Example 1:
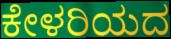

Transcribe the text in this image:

ಕೇಳರಿಯದ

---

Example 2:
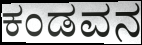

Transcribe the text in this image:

ಕಂಡವನ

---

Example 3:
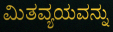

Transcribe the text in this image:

ಮಿತವ್ಯಯವನ್ನು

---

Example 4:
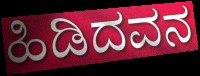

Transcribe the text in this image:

ಹಿಡಿದವನ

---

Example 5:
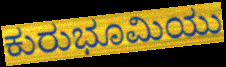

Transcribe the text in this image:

ಕುರುಭೂಮಿಯು